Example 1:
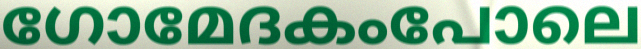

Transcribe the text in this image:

ഗോമേദകംപോലെ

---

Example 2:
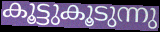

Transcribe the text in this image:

കൂട്ടുകൂടുന്നു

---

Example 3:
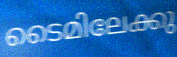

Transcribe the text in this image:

ടൈമിലേക്കു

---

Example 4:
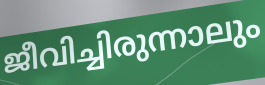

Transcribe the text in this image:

ജീവിച്ചിരുന്നാലും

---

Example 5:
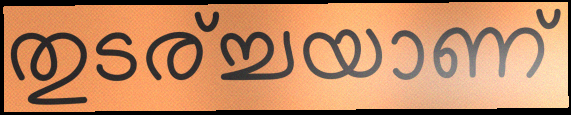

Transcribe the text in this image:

തുടര്ച്ചയാണ്